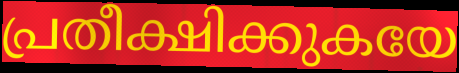
പ്രതീക്ഷിക്കുകയേ